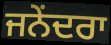
ਜਨੇਂਦਰਾ